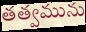
తత్వమును